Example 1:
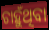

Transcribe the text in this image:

ଚାହୁଁଥିବା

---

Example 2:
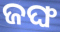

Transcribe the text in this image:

ଜଙ୍ଘ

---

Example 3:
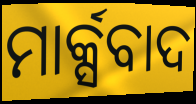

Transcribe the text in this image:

ମାର୍କ୍ସବାଦ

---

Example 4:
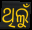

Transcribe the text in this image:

ଥିଲୁଁ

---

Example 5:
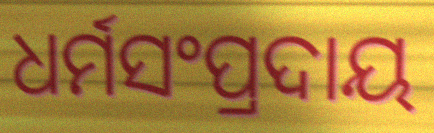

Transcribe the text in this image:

ଧର୍ମସଂପ୍ରଦାୟ